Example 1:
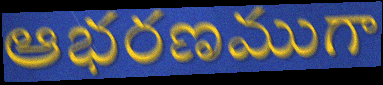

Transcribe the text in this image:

ఆభరణముగా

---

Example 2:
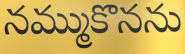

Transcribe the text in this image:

నమ్ముకొనను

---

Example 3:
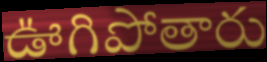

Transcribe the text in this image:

ఊగిపోతారు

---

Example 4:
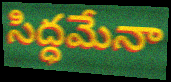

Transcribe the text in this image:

సిద్ధమేనా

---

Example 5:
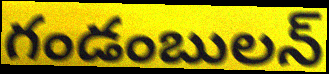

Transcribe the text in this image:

గండంబులన్